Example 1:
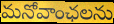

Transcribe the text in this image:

మనోవాంఛలను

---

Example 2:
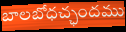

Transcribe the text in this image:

బాలబోధచ్ఛందము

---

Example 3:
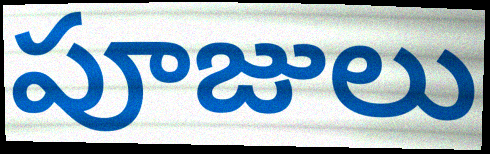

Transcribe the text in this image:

పూజులు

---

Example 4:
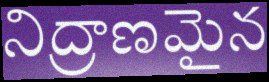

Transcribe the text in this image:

నిద్రాణమైన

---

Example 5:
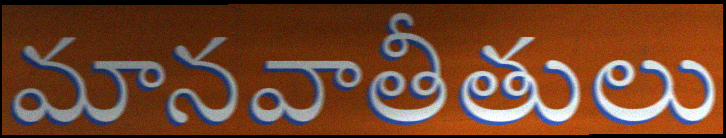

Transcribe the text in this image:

మానవాతీతులు